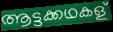
ആട്ടക്കഥകള്